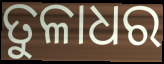
ତୁଳାଧର